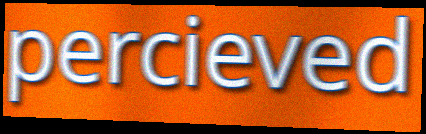
percieved